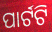
ପାର୍ଟଟି